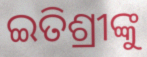
ଇତିଶ୍ରୀଙ୍କୁ